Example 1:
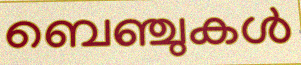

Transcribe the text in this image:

ബെഞ്ചുകൾ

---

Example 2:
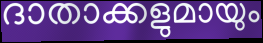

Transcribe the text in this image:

ദാതാക്കളുമായും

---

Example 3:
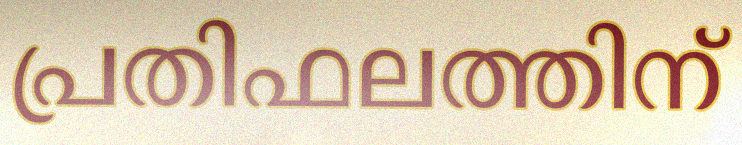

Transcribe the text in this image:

പ്രതിഫലത്തിന്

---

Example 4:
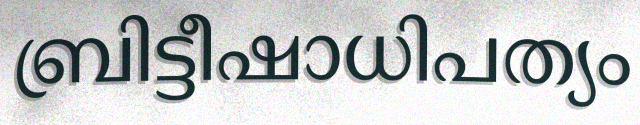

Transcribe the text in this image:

ബ്രിട്ടീഷാധിപത്യം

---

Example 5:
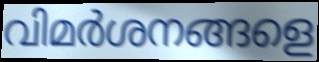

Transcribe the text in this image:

വിമർശനങ്ങളെ